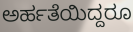
ಅರ್ಹತೆಯಿದ್ದರೂ